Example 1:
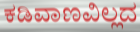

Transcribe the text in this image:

ಕಡಿವಾಣವಿಲ್ಲದ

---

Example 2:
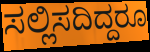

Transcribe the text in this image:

ಸಲ್ಲಿಸದಿದ್ದರೂ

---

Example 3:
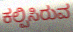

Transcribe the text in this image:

ಕಲ್ಪಿಸಿರುವ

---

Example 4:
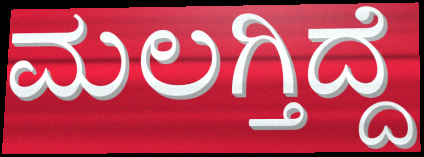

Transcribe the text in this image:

ಮಲಗ್ತಿದ್ದೆ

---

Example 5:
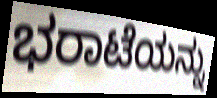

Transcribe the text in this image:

ಭರಾಟೆಯನ್ನು